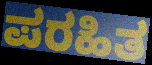
ಪರಹಿತ